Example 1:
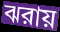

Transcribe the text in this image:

ঝরায়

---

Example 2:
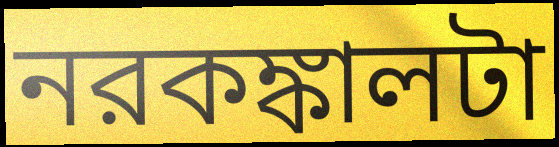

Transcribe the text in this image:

নরকঙ্কালটা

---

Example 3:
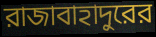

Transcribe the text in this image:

রাজাবাহাদুরের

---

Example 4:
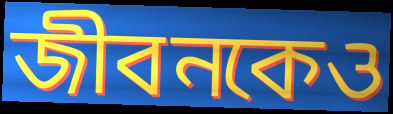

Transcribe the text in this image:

জীবনকেও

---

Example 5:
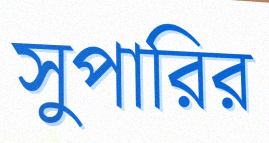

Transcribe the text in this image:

সুপারির